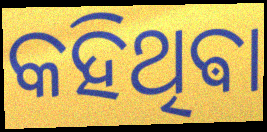
କହିଥିଵା